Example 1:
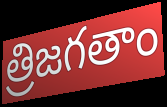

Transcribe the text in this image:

త్రిజగతాం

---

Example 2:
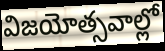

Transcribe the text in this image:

విజయోత్సవాల్లో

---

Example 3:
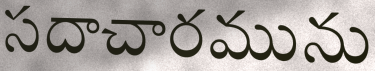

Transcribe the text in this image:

సదాచారమును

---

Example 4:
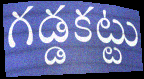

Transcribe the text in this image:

గడ్డకట్టు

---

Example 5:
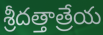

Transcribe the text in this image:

శ్రీదత్తాత్రేయ